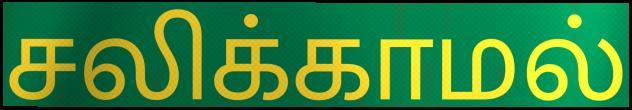
சலிக்காமல்